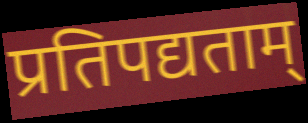
प्रतिपद्यताम्